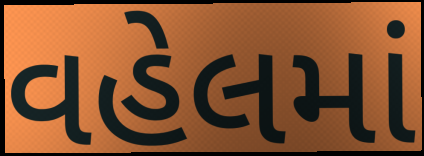
વહેલમાં